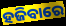
ହଜିବାରେ